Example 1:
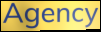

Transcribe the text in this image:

Agency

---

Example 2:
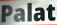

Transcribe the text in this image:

Palat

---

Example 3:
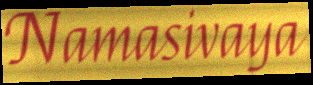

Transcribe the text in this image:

Namasivaya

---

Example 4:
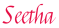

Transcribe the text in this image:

Seetha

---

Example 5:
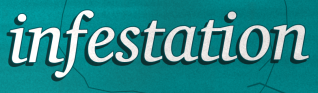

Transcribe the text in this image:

infestation